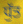
ਧੁੱਤ